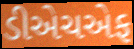
ડીએચએફ